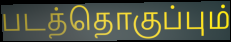
படத்தொகுப்பும்